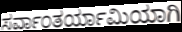
ಸರ್ವಾಂತರ್ಯಾಮಿಯಾಗಿ